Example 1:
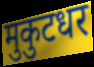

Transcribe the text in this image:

मुकुटधर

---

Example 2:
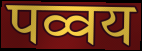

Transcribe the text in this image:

पव्वय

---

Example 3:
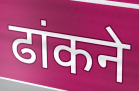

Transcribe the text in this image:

ढांकने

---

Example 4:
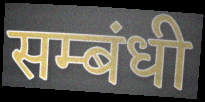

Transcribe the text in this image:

सम्बंधी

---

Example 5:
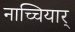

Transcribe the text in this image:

नाच्चियार्